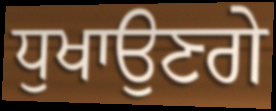
ਧੁਖਾਉਣਗੇ